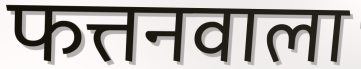
फत्तनवाला